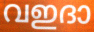
വഇദാ